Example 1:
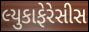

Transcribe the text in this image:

લ્યુકાફેરેસીસ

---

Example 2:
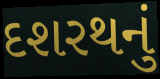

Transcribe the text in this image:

દશરથનું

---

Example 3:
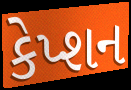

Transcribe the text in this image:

કેપ્શન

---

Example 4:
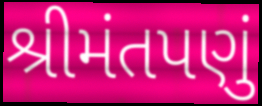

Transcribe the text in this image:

શ્રીમંતપણું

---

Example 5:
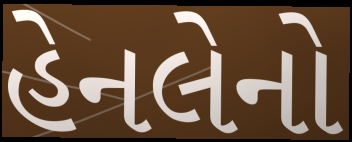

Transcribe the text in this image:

હેનલેનો